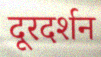
दूरदर्शन